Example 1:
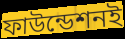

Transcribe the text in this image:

ফাউন্ডেশনই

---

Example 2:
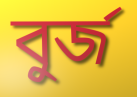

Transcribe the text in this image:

বুর্জ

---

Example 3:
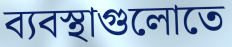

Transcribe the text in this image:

ব্যবস্থাগুলোতে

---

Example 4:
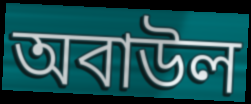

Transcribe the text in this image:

অবাউল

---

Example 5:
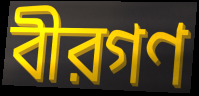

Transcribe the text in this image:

বীরগণ